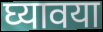
घ्यावया